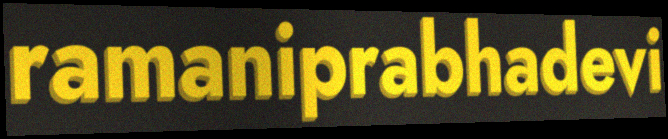
ramaniprabhadevi